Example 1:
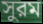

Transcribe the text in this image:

সুরম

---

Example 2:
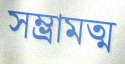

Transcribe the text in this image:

সম্ভ্রামত্ম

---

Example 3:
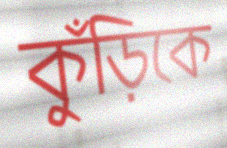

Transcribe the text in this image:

কুঁড়িকে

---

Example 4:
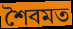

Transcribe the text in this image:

শৈবমত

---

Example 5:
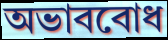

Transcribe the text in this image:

অভাববোধ